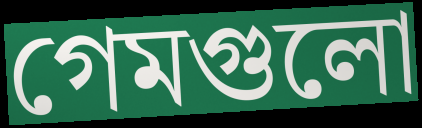
গেমগুলো